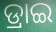
ଡ୍ରାଇ